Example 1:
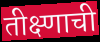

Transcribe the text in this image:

तीक्ष्णाची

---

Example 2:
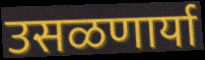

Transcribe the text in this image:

उसळणार्या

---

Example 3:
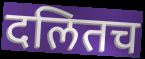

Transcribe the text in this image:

दलितच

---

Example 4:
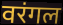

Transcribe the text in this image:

वरंगल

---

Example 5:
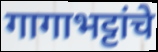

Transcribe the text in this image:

गागाभट्टांचे